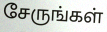
சேருங்கள்